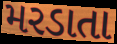
મરડાતા